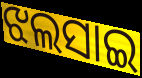
ଝଲସାଇ